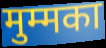
मुम्मका